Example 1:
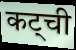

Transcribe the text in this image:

कट्ची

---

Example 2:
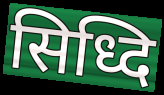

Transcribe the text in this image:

सिध्दि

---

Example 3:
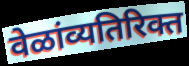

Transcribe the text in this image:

वेळांव्यतिरिक्त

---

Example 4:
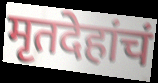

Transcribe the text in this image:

मृतदेहांचं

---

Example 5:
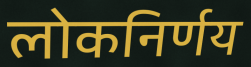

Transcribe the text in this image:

लोकनिर्णय